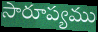
సారూప్యము